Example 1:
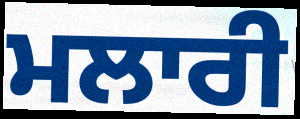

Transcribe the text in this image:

ਮਲਾਰੀ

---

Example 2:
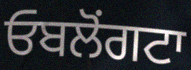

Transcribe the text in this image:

ਓਬਲੋਂਗਟਾ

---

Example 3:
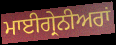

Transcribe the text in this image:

ਮਾਈਗ੍ਰੇਨੀਅਰਾਂ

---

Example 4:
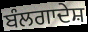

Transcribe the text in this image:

ਬੰਲਗਾਦੇਸ਼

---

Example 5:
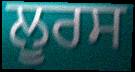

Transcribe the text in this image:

ਲੂਰਸ